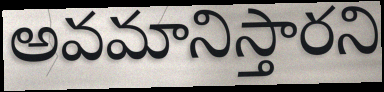
అవమానిస్తారని